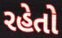
રહેતો